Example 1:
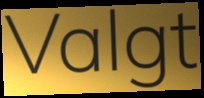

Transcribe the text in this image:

Valgt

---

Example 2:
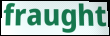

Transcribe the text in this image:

fraught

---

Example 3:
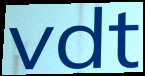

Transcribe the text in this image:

vdt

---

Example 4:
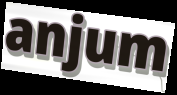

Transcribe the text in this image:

anjum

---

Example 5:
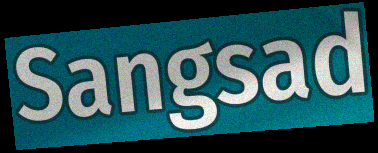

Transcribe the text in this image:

Sangsad